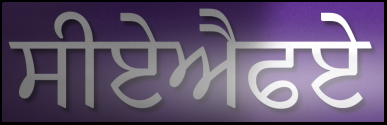
ਸੀਏਐਫਏ